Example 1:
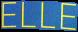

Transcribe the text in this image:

ELLE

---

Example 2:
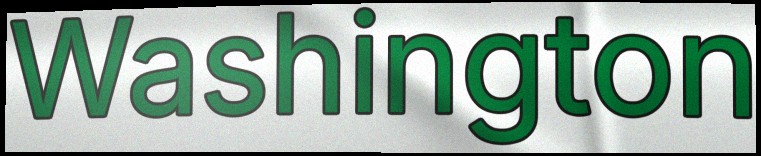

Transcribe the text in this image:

Washington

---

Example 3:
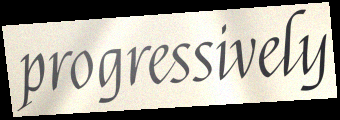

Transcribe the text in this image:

progressively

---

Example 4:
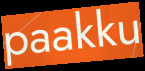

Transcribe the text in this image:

paakku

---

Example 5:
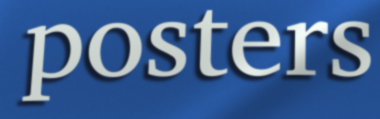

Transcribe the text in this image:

posters